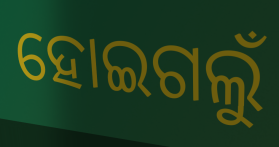
ହୋଇଗଲୁଁ